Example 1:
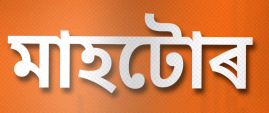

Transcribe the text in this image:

মাহটোৰ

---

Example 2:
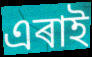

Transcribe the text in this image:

এৰাই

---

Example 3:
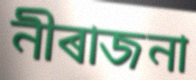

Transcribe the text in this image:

নীৰাজনা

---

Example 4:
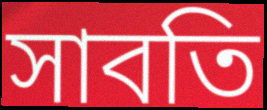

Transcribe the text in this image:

সাবতি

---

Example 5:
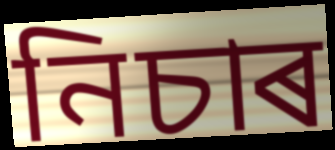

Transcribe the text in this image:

নিচাৰ